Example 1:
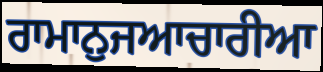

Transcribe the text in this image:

ਰਾਮਾਨੁਜਆਚਾਰੀਆ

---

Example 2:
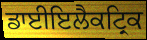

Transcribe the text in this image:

ਡਾਈਇਲੈਕਟ੍ਰਿਕ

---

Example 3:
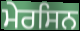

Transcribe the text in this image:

ਮੇਰਸਿਨ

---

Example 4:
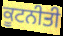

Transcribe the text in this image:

ਕੂਟਨੀਤੀ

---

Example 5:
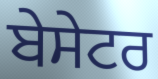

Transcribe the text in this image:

ਬੇਸੇਟਰ